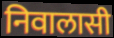
निवालासी